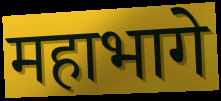
महाभागे